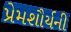
પ્રેમશૌર્યની